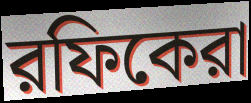
রফিকেরা